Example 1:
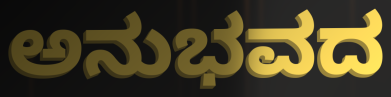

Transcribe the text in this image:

ಅನುಭವದ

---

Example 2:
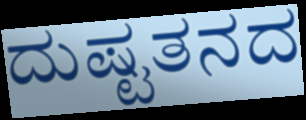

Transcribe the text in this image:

ದುಷ್ಟತನದ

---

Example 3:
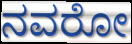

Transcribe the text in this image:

ನವರೋ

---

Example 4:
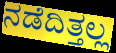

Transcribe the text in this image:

ನಡೆದಿತ್ತಲ್ಲ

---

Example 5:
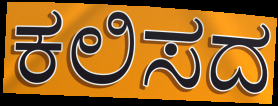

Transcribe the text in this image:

ಕಲಿಸದ